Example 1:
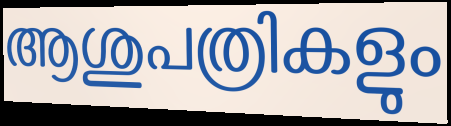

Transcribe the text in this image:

ആശുപത്രികളും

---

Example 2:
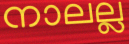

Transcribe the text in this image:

നാലല്ല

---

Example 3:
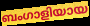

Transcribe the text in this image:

ബംഗാളിയായ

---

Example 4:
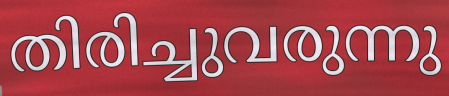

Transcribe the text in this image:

തിരിച്ചുവരുന്നു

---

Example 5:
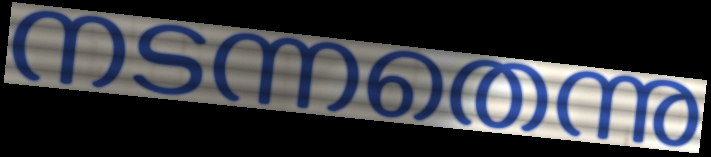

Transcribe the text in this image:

നടന്നതെന്നു